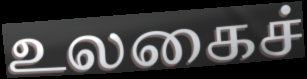
உலகைச்